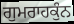
ਗੁਮਰਾਹਕੁੰਨ